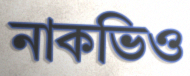
নাকভিও